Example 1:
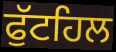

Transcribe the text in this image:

ਫੁੱਟਹਿਲ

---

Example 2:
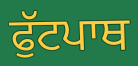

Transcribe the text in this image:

ਫੁੱਟਪਾਥ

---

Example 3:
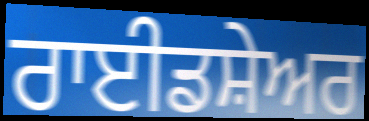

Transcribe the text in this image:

ਰਾਈਡਸ਼ੇਅਰ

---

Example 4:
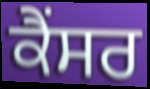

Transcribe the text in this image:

ਕੈੰਸਰ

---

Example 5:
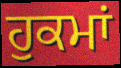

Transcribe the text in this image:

ਹੁਕਮਾਂ